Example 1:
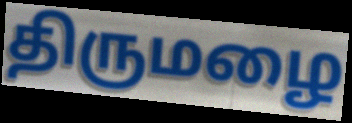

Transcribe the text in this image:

திருமழை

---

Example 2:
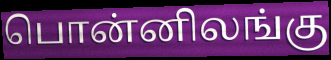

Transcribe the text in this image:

பொன்னிலங்கு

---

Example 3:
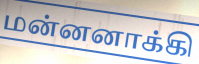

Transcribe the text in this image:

மன்னனாக்கி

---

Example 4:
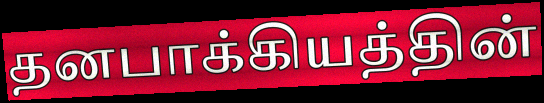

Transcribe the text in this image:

தனபாக்கியத்தின்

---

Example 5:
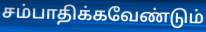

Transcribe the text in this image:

சம்பாதிக்கவேண்டும்